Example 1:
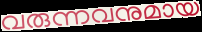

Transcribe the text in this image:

വരുന്നവനുമായ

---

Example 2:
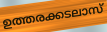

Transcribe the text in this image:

ഉത്തരക്കടലാസ്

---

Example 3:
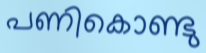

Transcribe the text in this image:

പണികൊണ്ടു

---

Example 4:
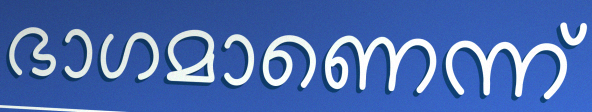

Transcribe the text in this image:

ഭാഗമാണെന്ന്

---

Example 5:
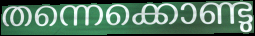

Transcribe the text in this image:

തന്നെക്കൊണ്ടു